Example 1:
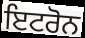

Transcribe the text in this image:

ਇਟਰੋਨ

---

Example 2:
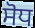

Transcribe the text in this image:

ਸੋਧ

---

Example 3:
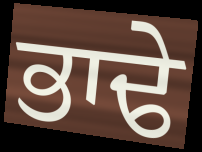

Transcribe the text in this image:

ਭਾਢੇ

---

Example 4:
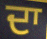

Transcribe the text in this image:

ਦਾ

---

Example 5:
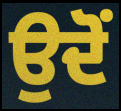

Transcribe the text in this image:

ਉਦੋਂ